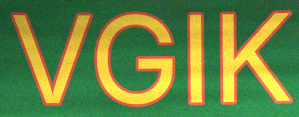
VGIK